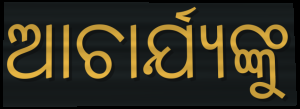
ଆଚାର୍ଯ୍ୟଙ୍କୁ